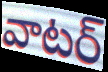
వాటర్